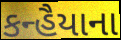
કન્હૈયાના